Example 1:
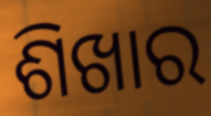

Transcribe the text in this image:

ଶିଖାର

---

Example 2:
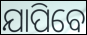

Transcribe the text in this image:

ଯାପିବେ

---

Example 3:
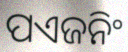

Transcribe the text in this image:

ପଏଜନିଂ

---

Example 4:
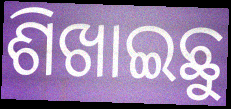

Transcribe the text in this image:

ଶିଖାଇଛୁ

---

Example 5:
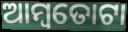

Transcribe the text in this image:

ଆମ୍ବତୋଟା